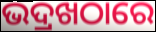
ଭଦ୍ରଖଠାରେ